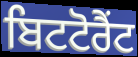
ਬਿਟਟੋਰੈਂਟ